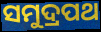
ସମୁଦ୍ରପଥ